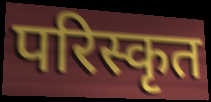
परिस्कृत